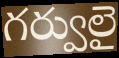
గర్వులై